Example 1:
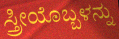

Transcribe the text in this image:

ಸ್ತ್ರೀಯೊಬ್ಬಳನ್ನು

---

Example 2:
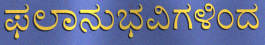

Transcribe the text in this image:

ಫಲಾನುಭವಿಗಳಿಂದ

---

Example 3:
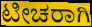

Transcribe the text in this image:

ಟೀಚರಾಗಿ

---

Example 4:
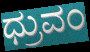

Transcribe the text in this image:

ಧ್ರುವಂ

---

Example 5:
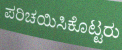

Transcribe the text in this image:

ಪರಿಚಯಿಸಿಕೊಟ್ಟರು